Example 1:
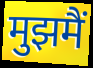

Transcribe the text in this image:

मुझमैं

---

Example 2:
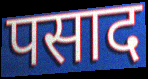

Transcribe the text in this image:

पसाद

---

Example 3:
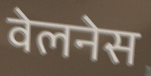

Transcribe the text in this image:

वेलनेस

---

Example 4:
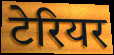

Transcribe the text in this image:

टेरियर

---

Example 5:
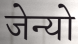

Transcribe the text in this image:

जेन्यो